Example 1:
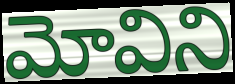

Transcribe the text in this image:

మోవిని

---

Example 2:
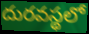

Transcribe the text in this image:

దురవస్థలో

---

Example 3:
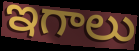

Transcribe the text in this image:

ఇగాలు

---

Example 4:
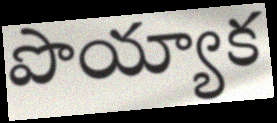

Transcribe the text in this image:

పొయ్యాక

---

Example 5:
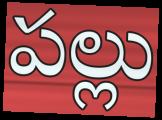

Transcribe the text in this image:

పల్లు